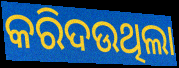
କରିଦଉଥିଲା